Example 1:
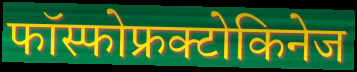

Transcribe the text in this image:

फॉस्फोफ्रक्टोकिनेज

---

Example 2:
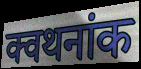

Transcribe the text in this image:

क्वथनांक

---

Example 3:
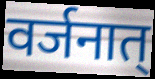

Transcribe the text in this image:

वर्जनात्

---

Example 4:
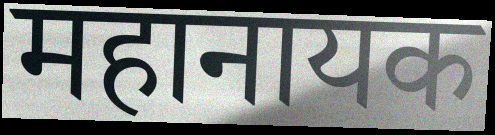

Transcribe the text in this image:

महानायक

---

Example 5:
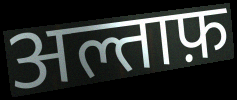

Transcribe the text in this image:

अल्ताफ़